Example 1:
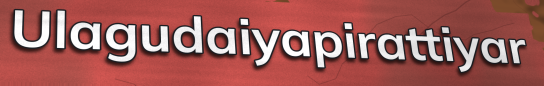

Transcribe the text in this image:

Ulagudaiyapirattiyar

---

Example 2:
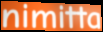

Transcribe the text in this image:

nimitta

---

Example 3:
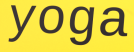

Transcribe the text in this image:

yoga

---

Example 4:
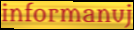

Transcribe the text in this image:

informanuj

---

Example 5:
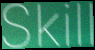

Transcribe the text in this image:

Skill